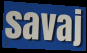
savaj